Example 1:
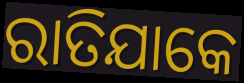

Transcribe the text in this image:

ରାତିଯାକେ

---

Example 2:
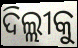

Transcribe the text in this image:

ଦିଲ୍ଲୀକୁ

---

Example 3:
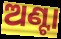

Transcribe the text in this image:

ଅଣ୍ଟା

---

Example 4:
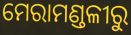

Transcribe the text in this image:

ମେରାମଣ୍ଡଳୀରୁ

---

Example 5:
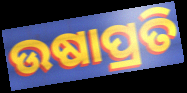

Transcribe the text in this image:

ଉଷାପ୍ରତି